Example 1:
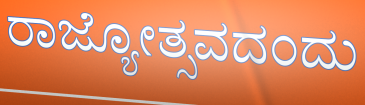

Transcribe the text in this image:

ರಾಜ್ಯೋತ್ಸವದಂದು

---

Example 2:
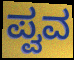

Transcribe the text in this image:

ಪ್ವವ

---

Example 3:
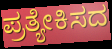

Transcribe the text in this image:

ಪ್ರತ್ಯೇಕಿಸದ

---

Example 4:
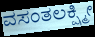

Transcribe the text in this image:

ವಸಂತಲಕ್ಷ್ಮೀ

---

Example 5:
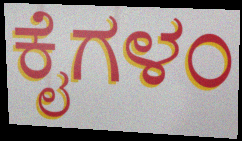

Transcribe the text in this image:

ಕೈಗಳಂ